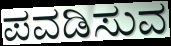
ಪವಡಿಸುವ